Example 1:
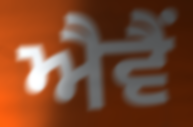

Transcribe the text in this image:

ਐਵੈਂ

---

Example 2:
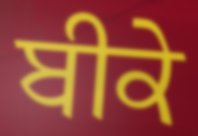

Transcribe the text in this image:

ਬੀਕੇ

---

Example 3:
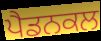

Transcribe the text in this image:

ਪੈਡਨਕਲ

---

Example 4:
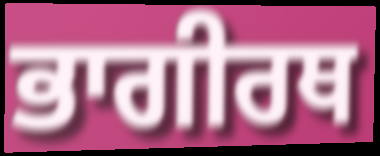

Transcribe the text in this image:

ਭਾਗੀਰਥ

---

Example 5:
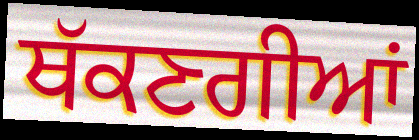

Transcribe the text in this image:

ਥੱਕਣਗੀਆਂ